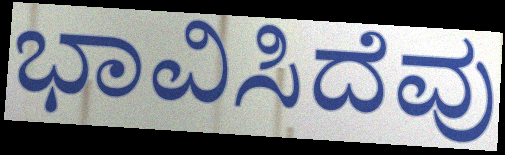
ಭಾವಿಸಿದೆವು